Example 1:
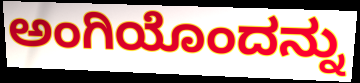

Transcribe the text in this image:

ಅಂಗಿಯೊಂದನ್ನು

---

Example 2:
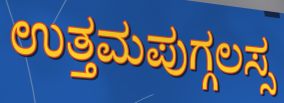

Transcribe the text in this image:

ಉತ್ತಮಪುಗ್ಗಲಸ್ಸ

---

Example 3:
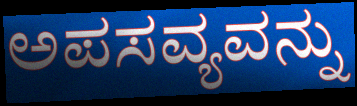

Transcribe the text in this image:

ಅಪಸವ್ಯವನ್ನು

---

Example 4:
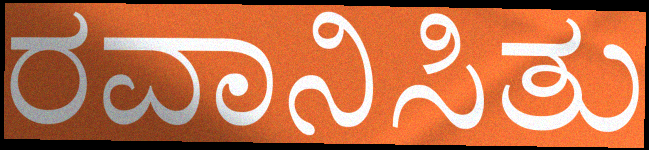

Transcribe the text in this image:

ರವಾನಿಸಿತು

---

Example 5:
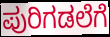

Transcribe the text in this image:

ಪುರಿಗಡಲೆಗೆ